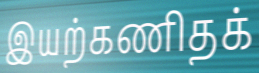
இயற்கணிதக்